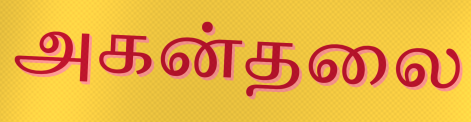
அகன்தலை